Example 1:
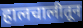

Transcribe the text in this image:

हालचालीतून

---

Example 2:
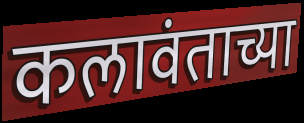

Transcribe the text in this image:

कलावंताच्या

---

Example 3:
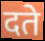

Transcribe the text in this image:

दते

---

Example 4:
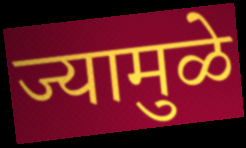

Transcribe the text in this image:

ज्यामुळे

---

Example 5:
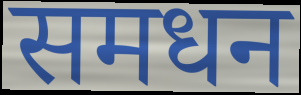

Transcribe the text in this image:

समधन